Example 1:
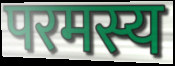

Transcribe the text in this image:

परमस्य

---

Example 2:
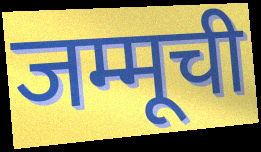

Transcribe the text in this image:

जम्मूची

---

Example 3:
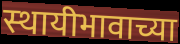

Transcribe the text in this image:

स्थायीभावाच्या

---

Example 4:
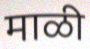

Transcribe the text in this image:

माळी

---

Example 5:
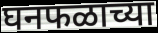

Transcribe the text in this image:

घनफळाच्या